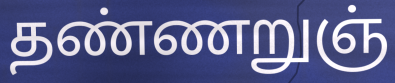
தண்ணறுஞ்